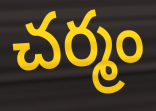
చర్మం